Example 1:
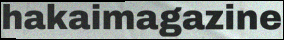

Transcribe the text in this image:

hakaimagazine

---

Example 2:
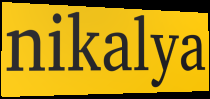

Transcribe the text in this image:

nikalya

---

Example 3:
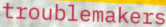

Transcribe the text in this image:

troublemakers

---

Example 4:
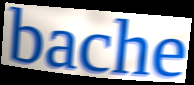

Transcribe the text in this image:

bache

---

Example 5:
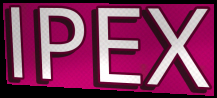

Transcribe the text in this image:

IPEX